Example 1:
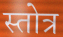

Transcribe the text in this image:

स्तोत्र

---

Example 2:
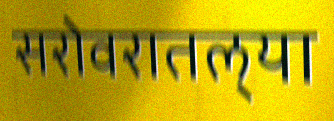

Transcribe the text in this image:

सरोवरातल्या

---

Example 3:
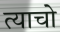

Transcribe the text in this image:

त्याचो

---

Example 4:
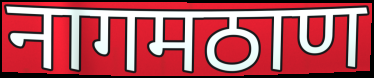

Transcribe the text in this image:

नागमठाण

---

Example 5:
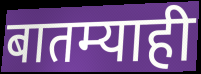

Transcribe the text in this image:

बातम्याही